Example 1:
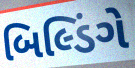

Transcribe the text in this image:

બિલ્ડિંગે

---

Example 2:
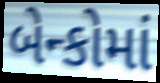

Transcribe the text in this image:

બેન્કોમાં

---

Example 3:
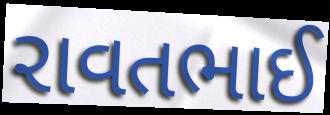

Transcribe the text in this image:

રાવતભાઈ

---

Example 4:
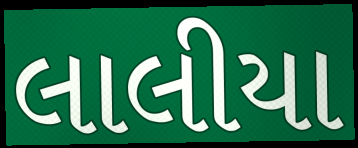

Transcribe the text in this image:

લાલીયા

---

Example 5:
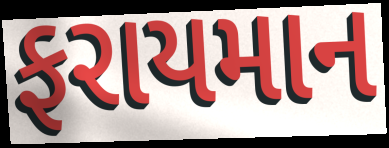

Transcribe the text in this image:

ફરાયમાન